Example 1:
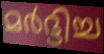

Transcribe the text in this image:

മർദ്ദിച്ച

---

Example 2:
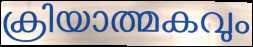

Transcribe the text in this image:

ക്രിയാത്മകവും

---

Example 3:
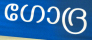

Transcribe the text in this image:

ഗോദ്ര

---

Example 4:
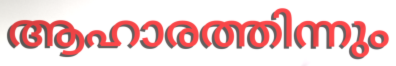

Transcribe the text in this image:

ആഹാരത്തിന്നും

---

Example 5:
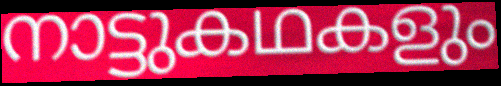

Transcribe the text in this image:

നാട്ടുകഥകളും